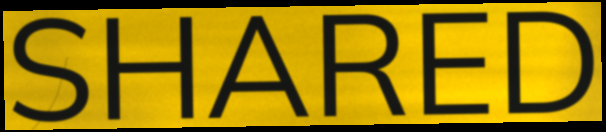
SHARED